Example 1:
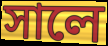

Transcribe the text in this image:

সালে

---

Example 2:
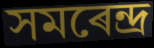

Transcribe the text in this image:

সমৰেন্দ্ৰ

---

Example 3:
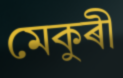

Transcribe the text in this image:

মেকুৰী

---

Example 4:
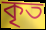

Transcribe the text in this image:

কৃত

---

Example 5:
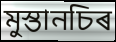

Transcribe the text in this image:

মুস্তানচিৰ